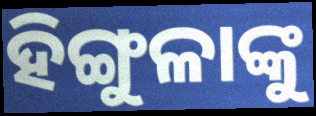
ହିଙ୍ଗୁଳାଙ୍କୁ